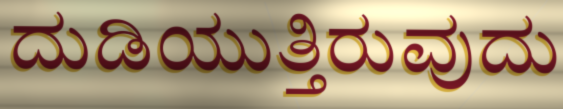
ದುಡಿಯುತ್ತಿರುವುದು